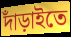
দাঁড়াইতে